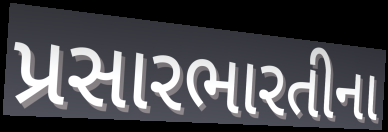
પ્રસારભારતીના